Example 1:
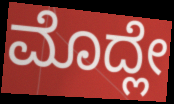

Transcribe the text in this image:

ಮೊದ್ಲೇ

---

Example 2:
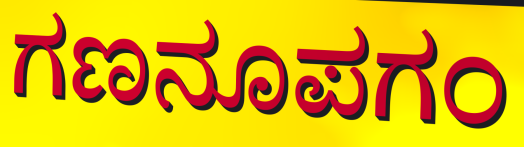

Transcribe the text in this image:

ಗಣನೂಪಗಂ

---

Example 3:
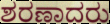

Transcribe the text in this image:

ಶರಣಾದರು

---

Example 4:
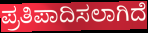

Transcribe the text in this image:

ಪ್ರತಿಪಾದಿಸಲಾಗಿದೆ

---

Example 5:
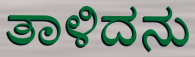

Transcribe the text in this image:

ತಾಳಿದನು